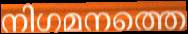
നിഗമനത്തെ